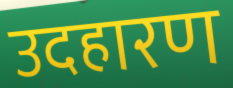
उदहारण